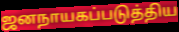
ஜனநாயகப்படுத்திய